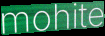
mohite